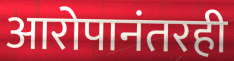
आरोपानंतरही